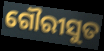
ଗୌରୀସୁତ